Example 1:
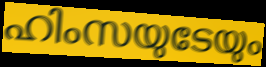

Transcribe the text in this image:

ഹിംസയുടേയും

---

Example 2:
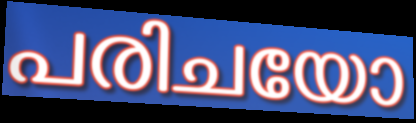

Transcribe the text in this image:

പരിചയോ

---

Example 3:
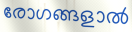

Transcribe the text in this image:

രോഗങ്ങളാൽ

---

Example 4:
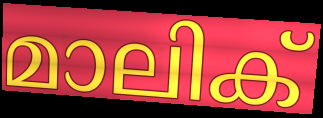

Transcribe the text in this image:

മാലിക്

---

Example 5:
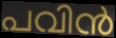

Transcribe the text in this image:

പവിൻ